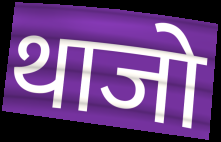
थाजो